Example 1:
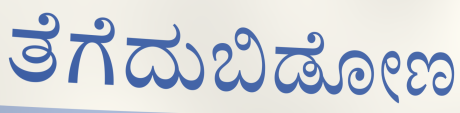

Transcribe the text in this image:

ತೆಗೆದುಬಿಡೋಣ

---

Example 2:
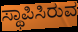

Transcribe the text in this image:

ಸ್ಥಾಪಿಸಿರುವ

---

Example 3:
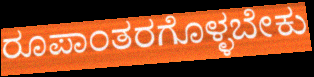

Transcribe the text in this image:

ರೂಪಾಂತರಗೊಳ್ಳಬೇಕು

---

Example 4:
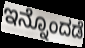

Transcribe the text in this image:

ಇನ್ನೊಂದಡೆ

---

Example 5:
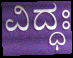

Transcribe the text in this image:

ವಿದ್ಧಃ